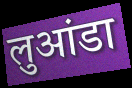
लुआंडा